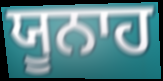
ਯੂਨਾਹ